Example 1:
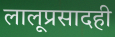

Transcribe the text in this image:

लालूप्रसादही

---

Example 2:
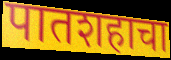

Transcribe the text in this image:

पातशहाचा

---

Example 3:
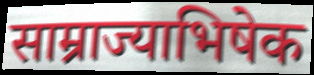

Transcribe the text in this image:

साम्राज्याभिषेक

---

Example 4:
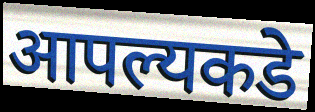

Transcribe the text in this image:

आपल्यकडे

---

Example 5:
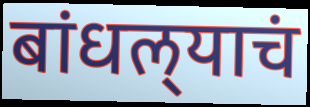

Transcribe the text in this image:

बांधल्याचं